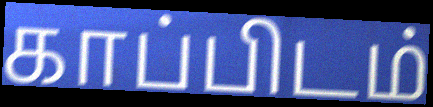
காப்பிடம்